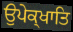
ਉਪੇਕ੍ਖਾਤਿ